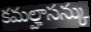
కమల్హాసన్కు